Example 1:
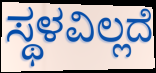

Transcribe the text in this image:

ಸ್ಥಳವಿಲ್ಲದೆ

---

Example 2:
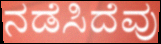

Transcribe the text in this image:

ನಡೆಸಿದೆವು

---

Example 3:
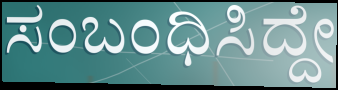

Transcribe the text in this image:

ಸಂಬಂಧಿಸಿದ್ದೇ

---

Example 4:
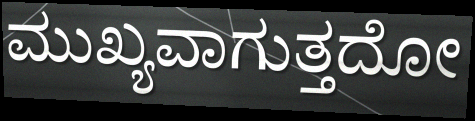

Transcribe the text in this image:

ಮುಖ್ಯವಾಗುತ್ತದೋ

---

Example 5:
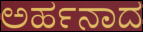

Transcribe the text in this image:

ಅರ್ಹನಾದ